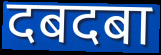
दबदबा